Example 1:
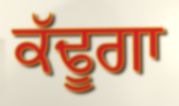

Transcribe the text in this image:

ਕੱਢੂਗਾ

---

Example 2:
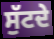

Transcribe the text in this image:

ਸੁੱਟਦੇ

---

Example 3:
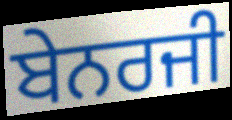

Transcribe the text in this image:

ਬੇਨਰਜੀ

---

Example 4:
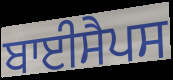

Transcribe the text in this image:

ਬਾਈਸੈਪਸ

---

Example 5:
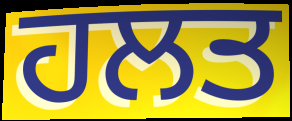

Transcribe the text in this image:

ਹਲਤ